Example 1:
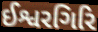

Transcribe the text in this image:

ઈશ્વરગિરિ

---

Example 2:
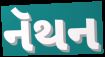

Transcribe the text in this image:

નૅથન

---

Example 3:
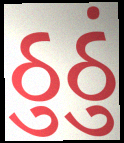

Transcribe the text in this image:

ઠુઠું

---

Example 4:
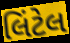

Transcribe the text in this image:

લિંટેલ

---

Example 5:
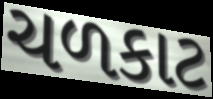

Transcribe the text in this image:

ચળકાટ